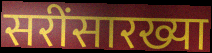
सरींसारख्या